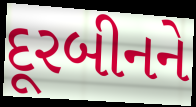
દૂરબીનને